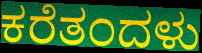
ಕರೆತಂದಳು